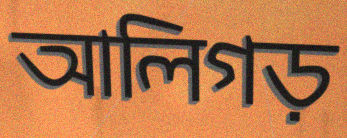
আলিগড়